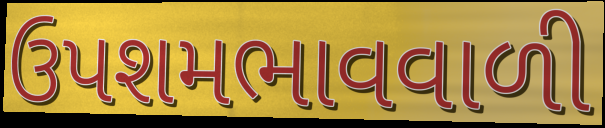
ઉપશમભાવવાળી